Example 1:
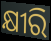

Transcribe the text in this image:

କ୍ଷୀରି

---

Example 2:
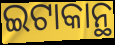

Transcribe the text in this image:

ଇଟାକାନ୍ଥ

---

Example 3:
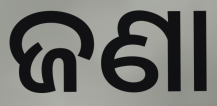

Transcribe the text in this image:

ଜଣା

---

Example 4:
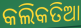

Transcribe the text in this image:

କଲିକତିଆ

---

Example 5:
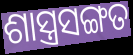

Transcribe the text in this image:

ଶାସ୍ତ୍ରସଙ୍ଗତ